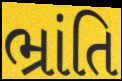
ભ્રાંતિ